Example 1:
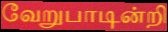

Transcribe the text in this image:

வேறுபாடின்றி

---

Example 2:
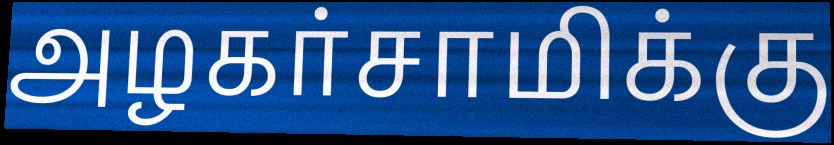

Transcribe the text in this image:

அழகர்சாமிக்கு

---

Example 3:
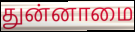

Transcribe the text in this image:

துன்னாமை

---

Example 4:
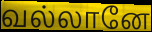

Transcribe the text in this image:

வல்லானே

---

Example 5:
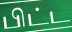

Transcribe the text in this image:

பிட்ட